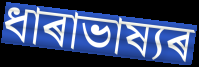
ধাৰাভাষ্যৰ